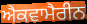
ਐਕਵਾਮੈਰੀਨ